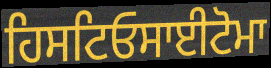
ਹਿਸਟਿਓਸਾਈਟੋਮਾ